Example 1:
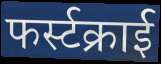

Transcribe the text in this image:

फर्स्टक्राई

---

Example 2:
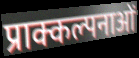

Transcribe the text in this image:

प्राक्कल्पनाओं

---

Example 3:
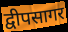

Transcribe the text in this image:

द्वीपसागर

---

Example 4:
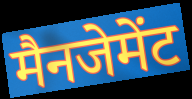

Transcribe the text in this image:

मैनजेमेंट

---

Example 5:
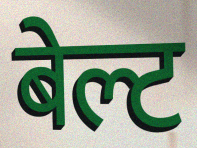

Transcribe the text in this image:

बेल्‍ट